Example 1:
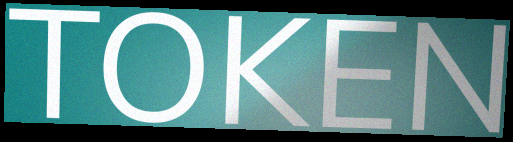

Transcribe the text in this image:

TOKEN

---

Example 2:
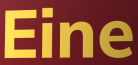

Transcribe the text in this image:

Eine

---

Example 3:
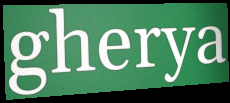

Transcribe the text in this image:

gherya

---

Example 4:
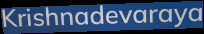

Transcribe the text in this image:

Krishnadevaraya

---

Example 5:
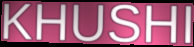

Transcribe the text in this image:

KHUSHI